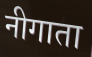
नीगाता